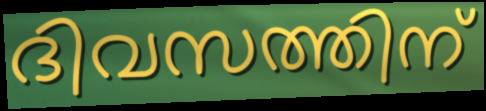
ദിവസത്തിന്